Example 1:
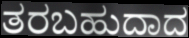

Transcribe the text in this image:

ತರಬಹುದಾದ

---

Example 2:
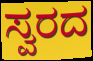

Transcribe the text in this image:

ಸ್ವರದ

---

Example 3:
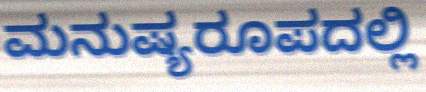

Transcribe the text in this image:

ಮನುಷ್ಯರೂಪದಲ್ಲಿ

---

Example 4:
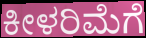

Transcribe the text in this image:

ಕೀಳರಿಮೆಗೆ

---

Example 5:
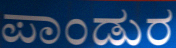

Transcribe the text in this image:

ಪಾಂಡುರ